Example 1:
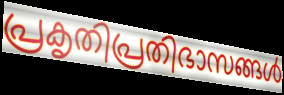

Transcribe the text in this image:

പ്രകൃതിപ്രതിഭാസങ്ങൾ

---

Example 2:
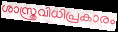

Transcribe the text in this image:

ശാസ്ത്രവിധിപ്രകാരം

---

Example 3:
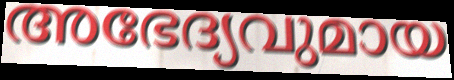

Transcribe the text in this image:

അഭേദ്യവുമായ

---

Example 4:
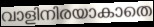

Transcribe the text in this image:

വാളിനിരയാകാതെ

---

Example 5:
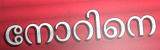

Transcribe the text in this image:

നോറിനെ